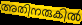
അതിനരുകിൽ